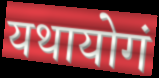
यथायोगं